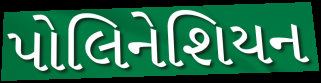
પોલિનેશિયન